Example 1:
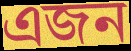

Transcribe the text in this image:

এজন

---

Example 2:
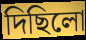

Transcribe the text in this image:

দিছিলো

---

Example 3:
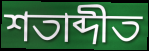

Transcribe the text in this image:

শতাব্দীত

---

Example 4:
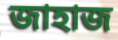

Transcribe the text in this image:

জাহাজ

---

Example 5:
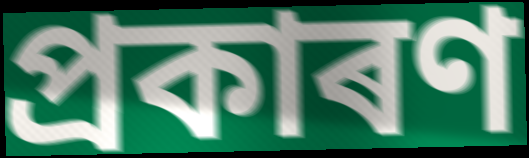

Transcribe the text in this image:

প্ৰকাৰণ